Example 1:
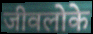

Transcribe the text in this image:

जीवलोके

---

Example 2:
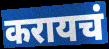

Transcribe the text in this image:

करायचं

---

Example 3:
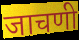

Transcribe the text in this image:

जाचणी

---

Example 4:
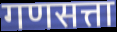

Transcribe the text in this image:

गणसत्ता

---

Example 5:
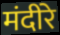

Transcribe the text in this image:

मंदीरे